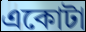
একোটা